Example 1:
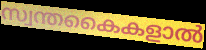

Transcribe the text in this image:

സ്വന്തകൈകളാൽ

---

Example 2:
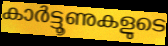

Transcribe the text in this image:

കാർട്ടൂണുകളുടെ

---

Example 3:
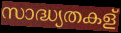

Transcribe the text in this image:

സാദ്ധ്യതകള്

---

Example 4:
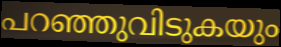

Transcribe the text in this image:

പറഞ്ഞുവിടുകയും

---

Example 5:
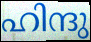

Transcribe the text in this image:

ഹിന്ദു